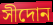
সীদোন